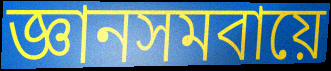
জ্ঞানসমবায়ে